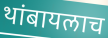
थांबायलाच